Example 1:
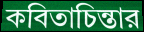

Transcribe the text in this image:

কবিতাচিন্তার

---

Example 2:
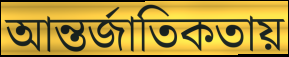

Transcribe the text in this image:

আন্তর্জাতিকতায়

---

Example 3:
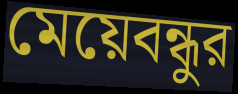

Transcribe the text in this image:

মেয়েবন্ধুর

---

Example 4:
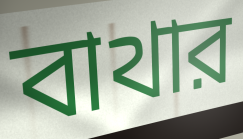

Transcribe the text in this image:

বাথার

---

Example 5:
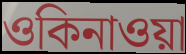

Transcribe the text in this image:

ওকিনাওয়া